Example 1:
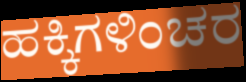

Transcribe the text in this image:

ಹಕ್ಕಿಗಳಿಂಚರ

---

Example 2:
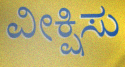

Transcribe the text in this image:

ವೀಕ್ಷಿಸು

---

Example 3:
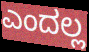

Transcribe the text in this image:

ಎಂದಲ್ಲ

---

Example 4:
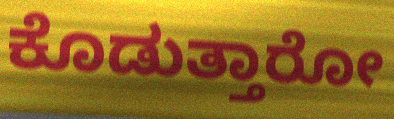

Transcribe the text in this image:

ಕೊಡುತ್ತಾರೋ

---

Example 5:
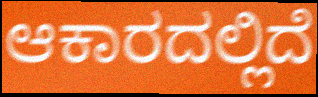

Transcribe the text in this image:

ಆಕಾರದಲ್ಲಿದೆ